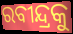
ରବୀନ୍ଦ୍ରକୁ